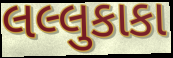
લલ્લુકાકા